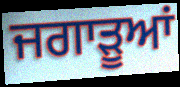
ਜਗਾੜੂਆਂ